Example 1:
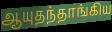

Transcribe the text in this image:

ஆயுதந்தாங்கிய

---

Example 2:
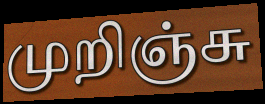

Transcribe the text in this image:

முறிஞ்சு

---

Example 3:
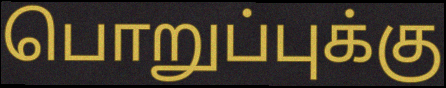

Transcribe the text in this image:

பொறுப்புக்கு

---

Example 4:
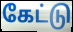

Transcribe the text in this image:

கேட்டு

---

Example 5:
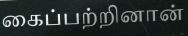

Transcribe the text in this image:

கைப்பற்றினான்